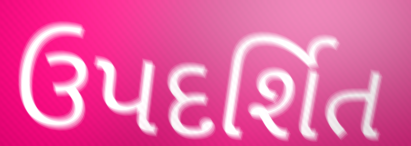
ઉપદર્શિત